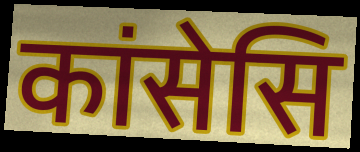
कांसेसि